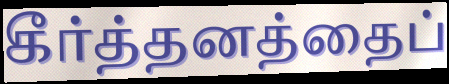
கீர்த்தனத்தைப்